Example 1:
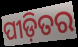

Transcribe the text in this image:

ପୀଡ଼ିତର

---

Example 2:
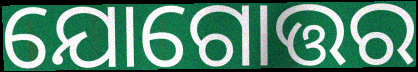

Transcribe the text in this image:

ଯୋଗୋତ୍ତର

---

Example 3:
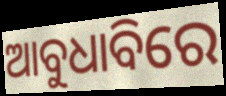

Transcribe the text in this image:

ଆବୁଧାବିରେ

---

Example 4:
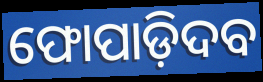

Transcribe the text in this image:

ଫୋପାଡ଼ିଦବ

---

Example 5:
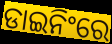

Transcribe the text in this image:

ଡାଇନିଂରେ